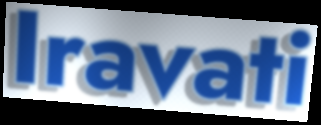
Iravati